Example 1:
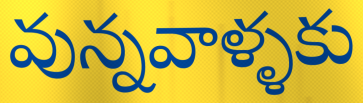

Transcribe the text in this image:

వున్నవాళ్ళకు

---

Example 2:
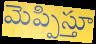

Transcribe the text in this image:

మెప్పిస్తూ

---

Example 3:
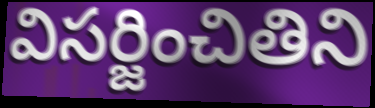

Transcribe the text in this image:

విసర్జించితిని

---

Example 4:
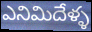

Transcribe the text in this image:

ఎనిమిదేళ్ళ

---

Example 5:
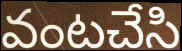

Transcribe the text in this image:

వంటచేసి